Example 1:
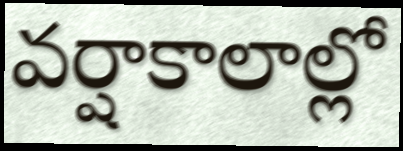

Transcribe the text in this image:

వర్షాకాలాల్లో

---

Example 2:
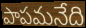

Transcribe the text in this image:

పాపమనేది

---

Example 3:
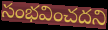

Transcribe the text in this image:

సంభవించదని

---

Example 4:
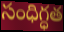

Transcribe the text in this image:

సంధిగ్ధత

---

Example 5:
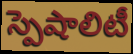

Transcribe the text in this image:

స్పెషాలిటీ